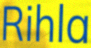
Rihla